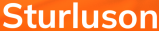
Sturluson